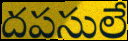
దపసులే